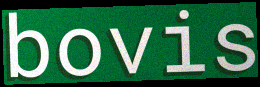
bovis